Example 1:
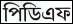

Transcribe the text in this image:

পিডিএফ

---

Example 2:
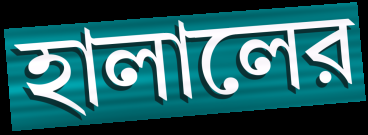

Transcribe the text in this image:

হালালের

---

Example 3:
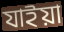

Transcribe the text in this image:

যাইয়া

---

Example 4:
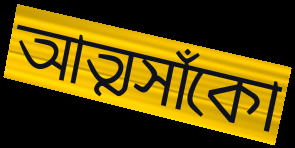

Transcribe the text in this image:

আত্মসাঁকো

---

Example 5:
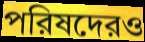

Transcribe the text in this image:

পরিষদেরও